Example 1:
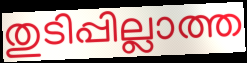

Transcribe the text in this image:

തുടിപ്പില്ലാത്ത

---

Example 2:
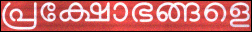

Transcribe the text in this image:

പ്രക്ഷോഭങ്ങളെ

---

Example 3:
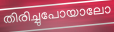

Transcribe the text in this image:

തിരിച്ചുപോയാലോ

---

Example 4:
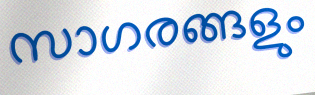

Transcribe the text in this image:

സാഗരങ്ങളും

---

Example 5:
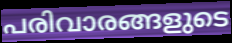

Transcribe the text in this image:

പരിവാരങ്ങളുടെ